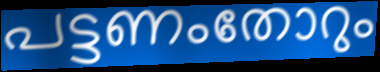
പട്ടണംതോറും